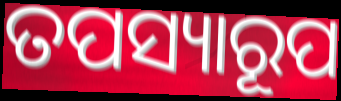
ତପସ୍ୟାରୂପ